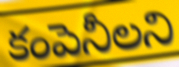
కంపెనీలని